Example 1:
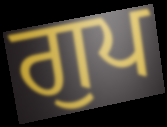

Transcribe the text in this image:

ਗੁਪ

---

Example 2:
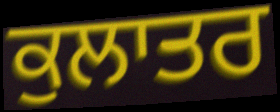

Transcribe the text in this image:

ਕੁਲਾਤਰ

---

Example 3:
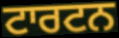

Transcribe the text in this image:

ਟਾਰਟਨ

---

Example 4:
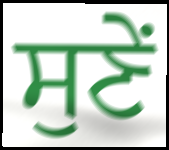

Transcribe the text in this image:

ਸੁਣੇਂ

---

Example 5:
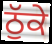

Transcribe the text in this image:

ਠੁੱਕੇ